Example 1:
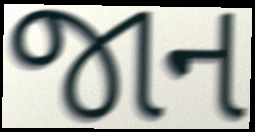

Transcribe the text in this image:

જાન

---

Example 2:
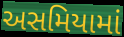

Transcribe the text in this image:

અસમિયામાં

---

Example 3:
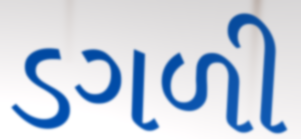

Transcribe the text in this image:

ડગળી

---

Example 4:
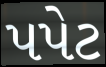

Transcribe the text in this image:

પપેટ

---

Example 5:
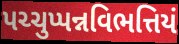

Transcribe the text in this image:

પચ્ચુપ્પન્નવિભત્તિયં